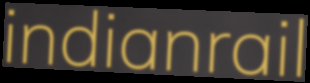
indianrail